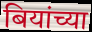
बियांच्या